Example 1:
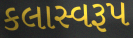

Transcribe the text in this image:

કલાસ્વરૂપ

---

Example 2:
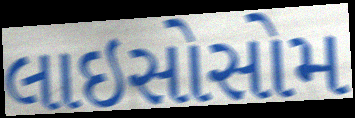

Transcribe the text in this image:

લાઇસોસોમ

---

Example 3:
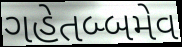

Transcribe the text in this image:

ગહેતબ્બમેવ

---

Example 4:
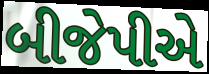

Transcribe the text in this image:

બીજેપીએ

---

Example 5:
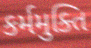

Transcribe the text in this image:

કર્મમુક્તિ